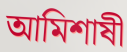
আমিশাষী